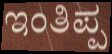
ಇಂತಿಪ್ಪ